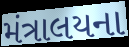
મંત્રાલયના